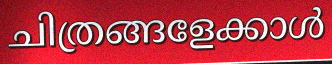
ചിത്രങ്ങളേക്കാൾ